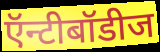
ऍन्टीबॉडीज